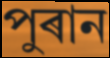
পুৰান